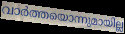
വാർത്തയൊന്നുമായില്ല